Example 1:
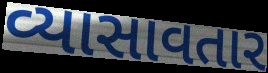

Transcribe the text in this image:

વ્યાસાવતાર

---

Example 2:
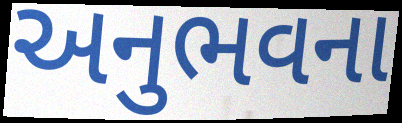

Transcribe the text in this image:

અનુભવના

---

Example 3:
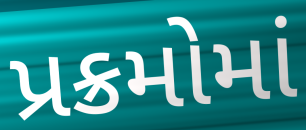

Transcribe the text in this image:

પ્રક્રમોમાં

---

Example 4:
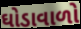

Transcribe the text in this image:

ઘોડાવાળો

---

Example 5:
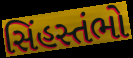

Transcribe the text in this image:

સિંહસ્તંભો